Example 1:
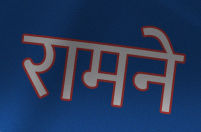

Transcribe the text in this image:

रामने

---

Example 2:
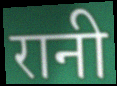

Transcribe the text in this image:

रानी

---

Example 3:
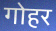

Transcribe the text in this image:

गोहर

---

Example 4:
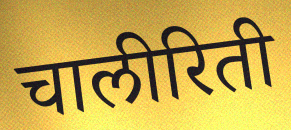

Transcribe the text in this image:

चालीरिती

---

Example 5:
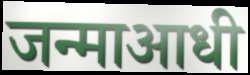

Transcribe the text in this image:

जन्माआधी